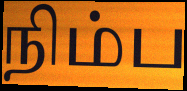
நிம்ப